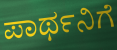
ಪಾರ್ಥನಿಗೆ